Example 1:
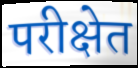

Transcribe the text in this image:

परीक्षेत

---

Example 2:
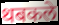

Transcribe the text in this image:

थबकले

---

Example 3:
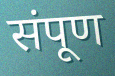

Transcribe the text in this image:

संपूण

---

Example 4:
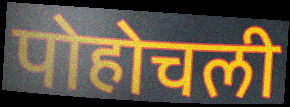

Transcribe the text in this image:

पोहोचली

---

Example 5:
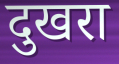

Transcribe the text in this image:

दुखरा